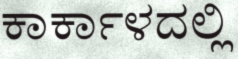
ಕಾರ್ಕಾಳದಲ್ಲಿ